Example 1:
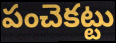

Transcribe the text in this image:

పంచెకట్టు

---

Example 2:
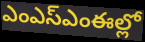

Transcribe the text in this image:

ఎంఎస్ఎంఈల్లో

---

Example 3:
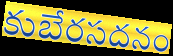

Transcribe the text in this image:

కుబేరసదనం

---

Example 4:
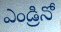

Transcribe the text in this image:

ఎండ్రినో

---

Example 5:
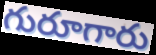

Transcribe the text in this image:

గురూగారు